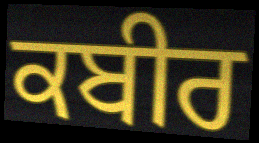
ਕਬੀਰ